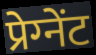
प्रेग्‍नेंट